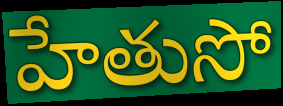
హేతుసో